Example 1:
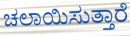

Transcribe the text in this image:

ಚಲಾಯಿಸುತ್ತಾರೆ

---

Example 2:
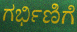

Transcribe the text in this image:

ಗರ್ಭಿಣಿಗೆ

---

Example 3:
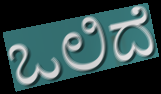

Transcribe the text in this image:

ಒಲಿದೆ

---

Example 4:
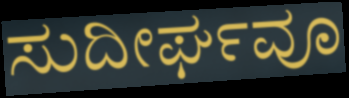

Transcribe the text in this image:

ಸುದೀರ್ಘವೂ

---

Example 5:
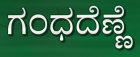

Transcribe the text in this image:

ಗಂಧದೆಣ್ಣೆ